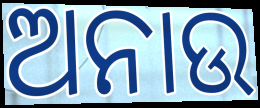
ଅନାଉ